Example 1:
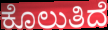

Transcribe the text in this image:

ಕೊಲುತಿದೆ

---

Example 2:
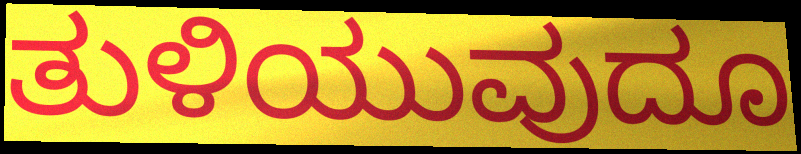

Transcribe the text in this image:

ತುಳಿಯುವುದೂ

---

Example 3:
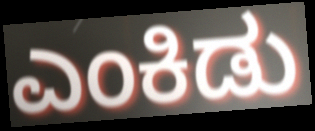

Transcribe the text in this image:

ಎಂಕಿಡು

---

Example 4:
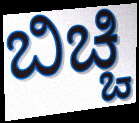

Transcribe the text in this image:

ಬಿಚ್ಚಿ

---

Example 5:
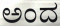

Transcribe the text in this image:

ಅಂದ